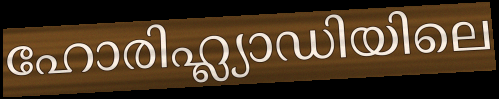
ഹോരിഹ്ല്യാഡിയിലെ